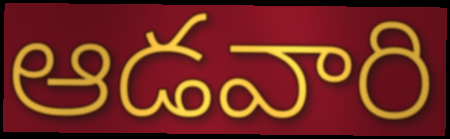
ఆడవారి